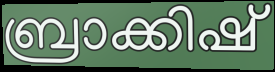
ബ്രാക്കിഷ്